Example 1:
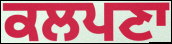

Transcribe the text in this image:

ਕਲਪਣਾ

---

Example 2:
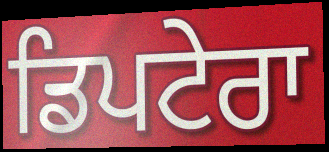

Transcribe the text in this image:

ਡਿਪਟੇਰਾ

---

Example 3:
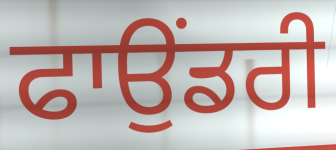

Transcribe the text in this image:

ਫਾਉਂਡਰੀ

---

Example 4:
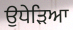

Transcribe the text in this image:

ਉਧੇੜਿਆ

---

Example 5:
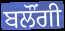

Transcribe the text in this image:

ਬਲੌਂਗੀ